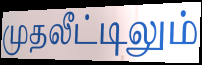
முதலீட்டிலும்